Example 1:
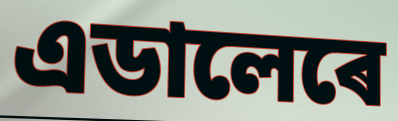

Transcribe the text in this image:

এডালেৰে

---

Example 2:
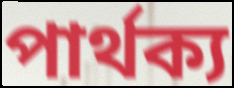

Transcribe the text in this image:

পাৰ্থক্য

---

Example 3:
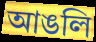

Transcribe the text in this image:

আঙলি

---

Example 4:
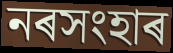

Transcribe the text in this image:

নৰসংহাৰ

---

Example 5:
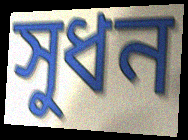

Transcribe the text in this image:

সুধন